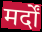
मर्दों